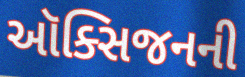
ઑક્સિજનની